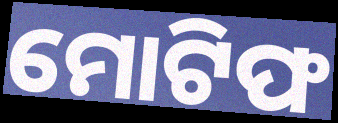
ମୋଟିଫ